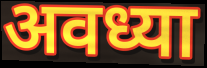
अवध्या